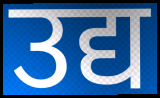
उद्य